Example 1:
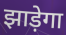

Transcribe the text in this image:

झाड़ेगा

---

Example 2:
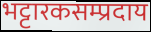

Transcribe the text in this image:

भट्टारकसम्प्रदाय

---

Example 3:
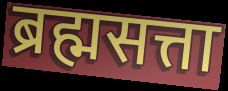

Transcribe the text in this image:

ब्रह्मसत्ता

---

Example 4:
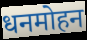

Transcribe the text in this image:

धनमोहन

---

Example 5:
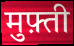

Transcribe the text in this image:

मुफ़्ती